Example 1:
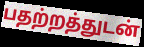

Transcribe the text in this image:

பதற்றத்துடன்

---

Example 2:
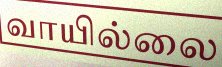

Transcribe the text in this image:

வாயில்லை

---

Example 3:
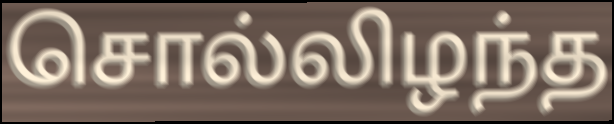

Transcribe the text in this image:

சொல்லிழந்த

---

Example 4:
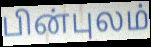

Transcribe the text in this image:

பின்புலம்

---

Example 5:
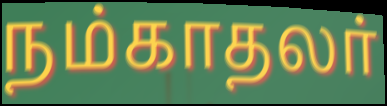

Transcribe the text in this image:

நம்காதலர்